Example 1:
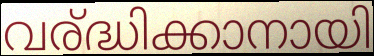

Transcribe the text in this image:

വര്ദ്ധിക്കാനായി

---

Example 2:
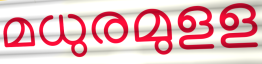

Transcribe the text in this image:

മധുരമുളള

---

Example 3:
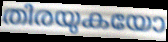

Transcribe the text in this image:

തിരയുകയോ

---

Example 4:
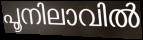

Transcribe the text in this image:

പൂനിലാവിൽ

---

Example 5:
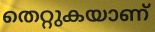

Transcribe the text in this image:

തെറ്റുകയാണ്